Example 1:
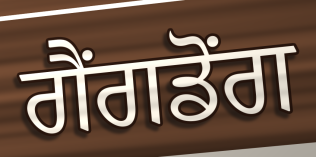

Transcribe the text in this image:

ਗੈਂਗਡੋਂਗ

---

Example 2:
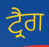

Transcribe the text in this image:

ਟ੍ਰੈਗ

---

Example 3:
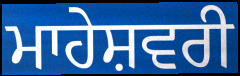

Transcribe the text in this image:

ਮਾਹੇਸ਼ਵਰੀ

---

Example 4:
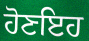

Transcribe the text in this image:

ਹੋਣਇਹ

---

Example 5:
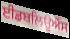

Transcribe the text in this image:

ਈਡਬਲਿਊਐੱਸ